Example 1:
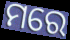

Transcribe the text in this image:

ମରେ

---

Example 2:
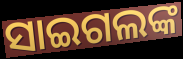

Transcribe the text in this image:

ସାଇଗଲଙ୍କ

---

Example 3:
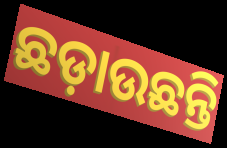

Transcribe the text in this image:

ଛଡ଼ାଉଛନ୍ତି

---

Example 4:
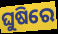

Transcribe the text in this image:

ଘୁଷିରେ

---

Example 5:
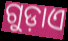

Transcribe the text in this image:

ଗୁଡ଼ାଏ